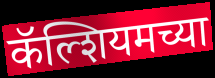
कॅल्शियमच्या